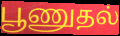
பூணுதல்